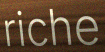
riche